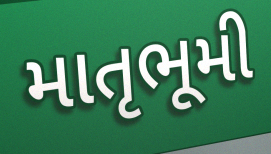
માતૃભૂમી